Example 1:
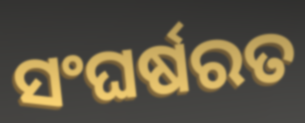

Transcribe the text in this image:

ସଂଘର୍ଷରତ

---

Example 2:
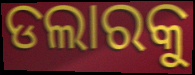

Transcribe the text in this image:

ଡଲାରକୁ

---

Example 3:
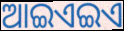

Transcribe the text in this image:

ଆଇଏଇଏ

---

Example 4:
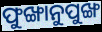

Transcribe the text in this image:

ଫୁଙ୍ଖାନୁପୁଙ୍ଖ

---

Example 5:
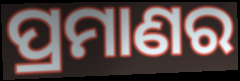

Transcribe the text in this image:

ପ୍ରମାଣର